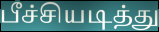
பீச்சியடித்து